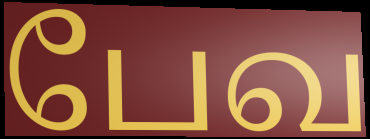
பேவ